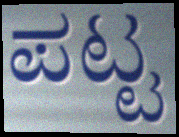
ಪಟ್ಟ